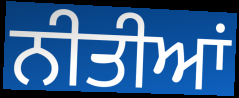
ਨੀਤੀਆਂ